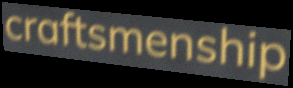
craftsmenship